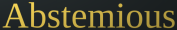
Abstemious